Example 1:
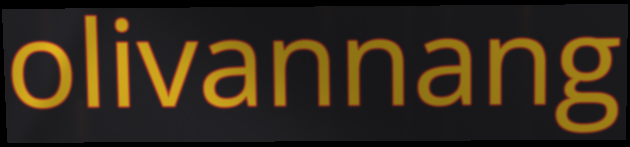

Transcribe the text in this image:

olivannang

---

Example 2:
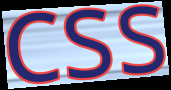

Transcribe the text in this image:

CSS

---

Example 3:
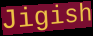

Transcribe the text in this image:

Jigish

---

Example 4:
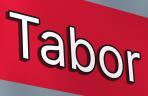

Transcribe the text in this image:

Tabor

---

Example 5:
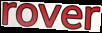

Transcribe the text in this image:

rover